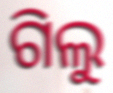
ଗିଲୁ